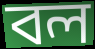
বল